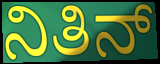
ನಿತಿನ್